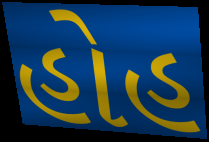
હોહ